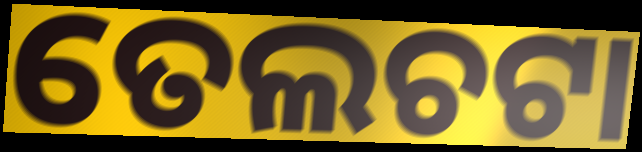
ତେଲଚଟା